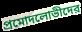
প্রমোদলোভীদের